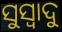
ସୁସ୍ଵାଦୁ